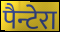
पैन्टेरा